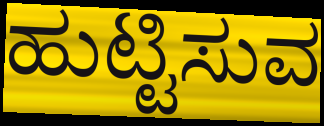
ಹುಟ್ಟಿಸುವ